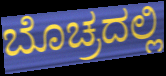
ಬೊಚ್ರದಲ್ಲಿ